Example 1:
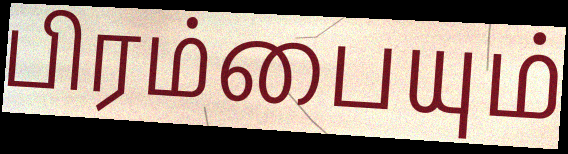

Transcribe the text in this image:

பிரம்பையும்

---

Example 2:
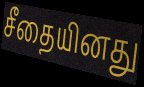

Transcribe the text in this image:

சீதையினது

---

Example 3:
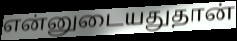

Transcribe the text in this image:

என்னுடையதுதான்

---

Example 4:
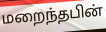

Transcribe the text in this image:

மறைந்தபின்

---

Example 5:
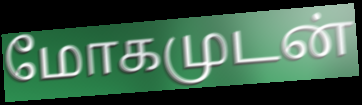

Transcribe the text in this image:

மோகமுடன்